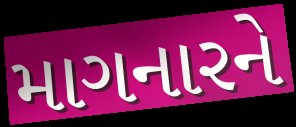
માગનારને